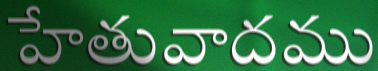
హేతువాదము